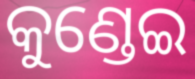
କୁଣ୍ଡେଇ